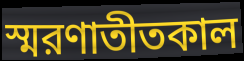
স্মরণাতীতকাল